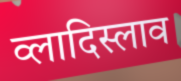
व्लादिस्लाव